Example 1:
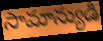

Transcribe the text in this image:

సామాన్యుడి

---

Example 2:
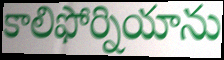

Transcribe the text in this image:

కాలిఫోర్నియాను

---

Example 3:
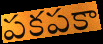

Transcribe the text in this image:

పకపకా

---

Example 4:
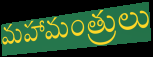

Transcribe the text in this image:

మహామంత్రులు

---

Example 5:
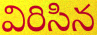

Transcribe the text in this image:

విరిసిన